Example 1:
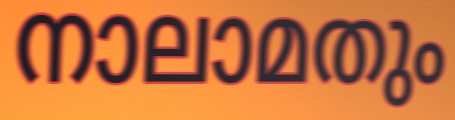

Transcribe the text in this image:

നാലാമതും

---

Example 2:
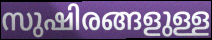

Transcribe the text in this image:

സുഷിരങ്ങളുള്ള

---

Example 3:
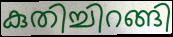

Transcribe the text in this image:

കുതിച്ചിറങ്ങി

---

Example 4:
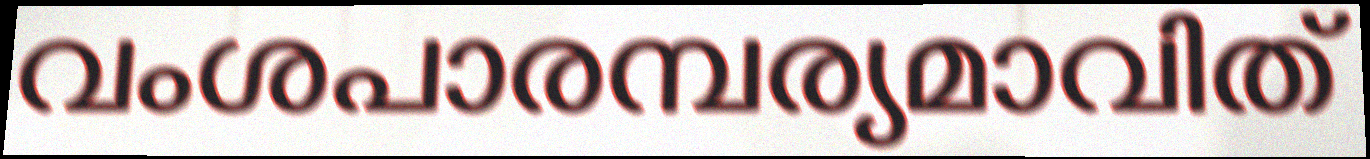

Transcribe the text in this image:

വംശപാരമ്പര്യമാവിത്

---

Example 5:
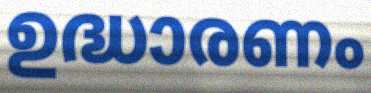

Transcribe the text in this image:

ഉദ്ധാരണം